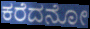
ಕರೆದನೋ